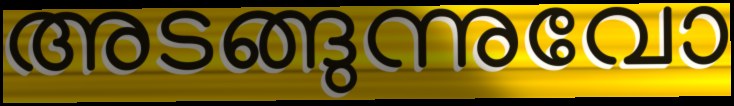
അടങ്ങുന്നുവോ